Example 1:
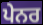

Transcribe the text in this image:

ਪੇਨਰ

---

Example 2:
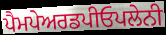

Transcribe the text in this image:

ਪੈਮਪੇਅਰਡਪੀਓਪਲੇਨੀ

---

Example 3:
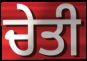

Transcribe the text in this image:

ਚੇਤੀ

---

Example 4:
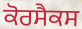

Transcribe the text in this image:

ਕੋਰਸੈਕਸ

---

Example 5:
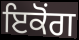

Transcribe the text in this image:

ਇਕੋਂਗ